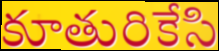
కూతురికేసి